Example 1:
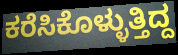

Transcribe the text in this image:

ಕರೆಸಿಕೊಳ್ಳುತ್ತಿದ್ದ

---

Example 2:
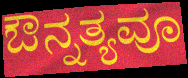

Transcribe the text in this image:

ಔನ್ನತ್ಯವೂ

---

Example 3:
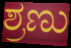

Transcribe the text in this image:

ಶ್ರಣು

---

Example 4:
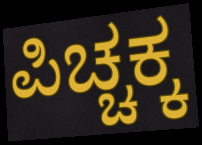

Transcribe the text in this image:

ಪಿಚ್ಚಕ್ಕ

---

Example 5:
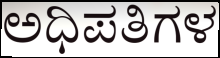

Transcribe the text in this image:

ಅಧಿಪತಿಗಳ